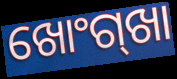
ଖୋଂଗ୍‍ଖା